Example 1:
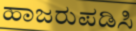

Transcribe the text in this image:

ಹಾಜರುಪಡಿಸಿ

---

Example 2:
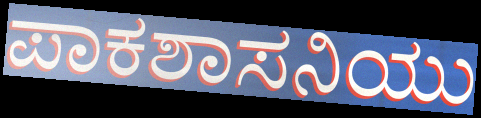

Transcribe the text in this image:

ಪಾಕಶಾಸನಿಯು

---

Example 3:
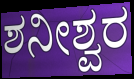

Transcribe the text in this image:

ಶನೀಶ್ವರ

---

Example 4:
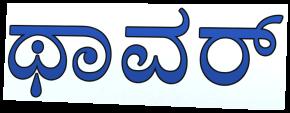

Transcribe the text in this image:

ಥಾವರ್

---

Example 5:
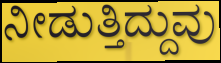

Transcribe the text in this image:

ನೀಡುತ್ತಿದ್ದುವು